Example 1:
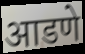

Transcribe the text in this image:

आडणे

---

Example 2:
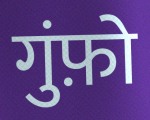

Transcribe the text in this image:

गुंफ़ो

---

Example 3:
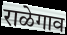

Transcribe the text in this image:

राळेगाव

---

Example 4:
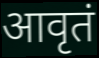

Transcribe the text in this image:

आवृतं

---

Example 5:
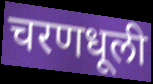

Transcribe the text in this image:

चरणधूली